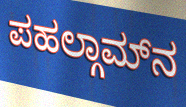
ಪಹಲ್ಗಾಮ್‌ನ